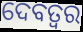
ଦେବତ୍ଵର